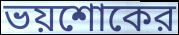
ভয়শোকের